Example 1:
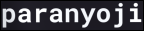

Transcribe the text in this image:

paranyoji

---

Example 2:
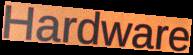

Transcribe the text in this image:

Hardware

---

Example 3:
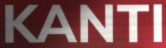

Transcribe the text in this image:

KANTI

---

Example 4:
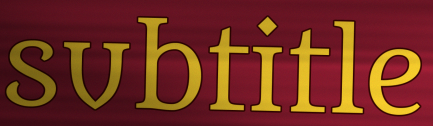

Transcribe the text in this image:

subtitle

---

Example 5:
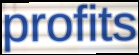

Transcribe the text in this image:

profits